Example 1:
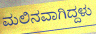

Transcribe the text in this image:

ಮಲಿನವಾಗಿದ್ದಳು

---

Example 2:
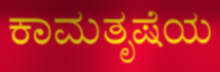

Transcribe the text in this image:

ಕಾಮತೃಷೆಯ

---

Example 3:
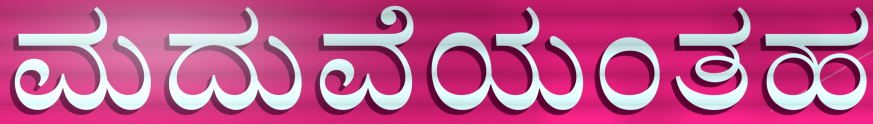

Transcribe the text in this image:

ಮದುವೆಯಂತಹ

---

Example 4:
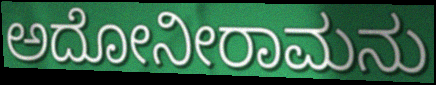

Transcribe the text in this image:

ಅದೋನೀರಾಮನು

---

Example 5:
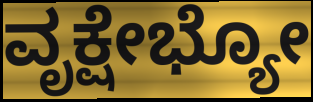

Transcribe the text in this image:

ವೃಕ್ಷೇಭ್ಯೋ